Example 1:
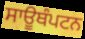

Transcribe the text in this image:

ਸਾਊਥੰਪਟਨ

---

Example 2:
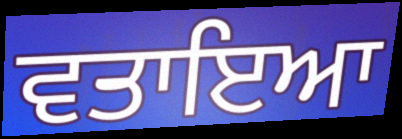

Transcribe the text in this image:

ਵਤਾਇਆ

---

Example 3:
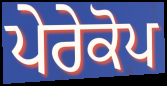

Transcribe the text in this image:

ਪੇਰੇਕੋਪ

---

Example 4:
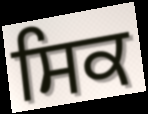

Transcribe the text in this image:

ਸਿਕ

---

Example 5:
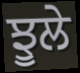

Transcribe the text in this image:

ਝੂਲੇ